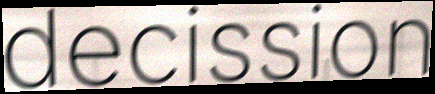
decission